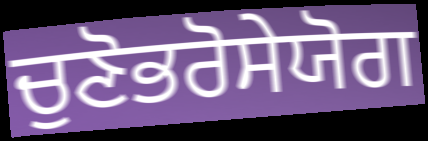
ਚੁਣੋਭਰੋਸੇਯੋਗ